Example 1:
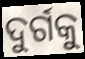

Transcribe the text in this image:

ଦୁର୍ଗକୁ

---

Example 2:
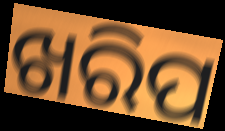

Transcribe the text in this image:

ଖରିପ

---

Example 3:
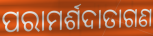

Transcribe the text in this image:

ପରାମର୍ଶଦାତାଗଣ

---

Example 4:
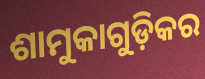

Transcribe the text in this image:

ଶାମୁକାଗୁଡ଼ିକର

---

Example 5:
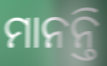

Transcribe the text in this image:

ମାନନ୍ତି